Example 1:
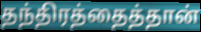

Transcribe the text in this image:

தந்திரத்தைத்தான்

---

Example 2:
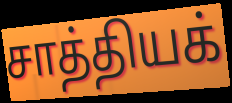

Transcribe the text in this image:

சாத்தியக்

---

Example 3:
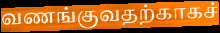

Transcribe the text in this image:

வணங்குவதற்காகச்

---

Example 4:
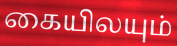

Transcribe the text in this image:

கையிலயும்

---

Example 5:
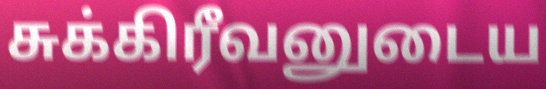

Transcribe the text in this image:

சுக்கிரீவனுடைய